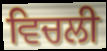
ਵਿਚਲੀ